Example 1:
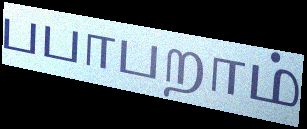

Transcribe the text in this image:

பபாபறாம்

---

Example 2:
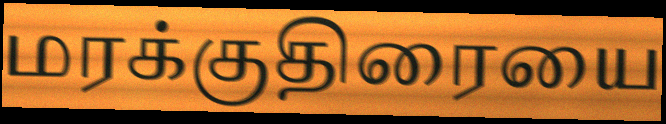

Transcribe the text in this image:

மரக்குதிரையை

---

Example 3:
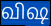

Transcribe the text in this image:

விஷ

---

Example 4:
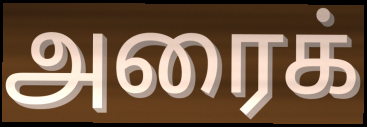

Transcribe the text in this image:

அரைக்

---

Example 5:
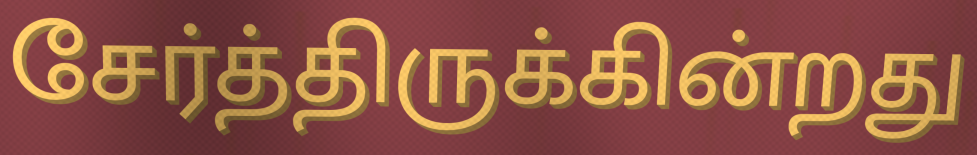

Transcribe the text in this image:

சேர்த்திருக்கின்றது